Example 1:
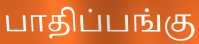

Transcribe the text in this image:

பாதிப்பங்கு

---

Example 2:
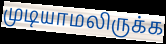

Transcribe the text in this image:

முடியாமலிருக்க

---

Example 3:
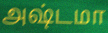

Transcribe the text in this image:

அஷ்டமா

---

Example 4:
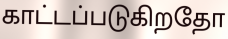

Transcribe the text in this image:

காட்டப்படுகிறதோ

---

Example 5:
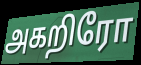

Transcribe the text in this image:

அகறிரோ